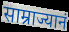
साम्राज्यानं